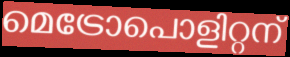
മെട്രോപൊളിറ്റന്